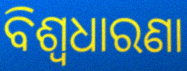
ବିଶ୍ୱଧାରଣା